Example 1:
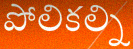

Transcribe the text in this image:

పోలికల్ని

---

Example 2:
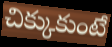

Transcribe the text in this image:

చిక్కుకుంటే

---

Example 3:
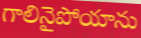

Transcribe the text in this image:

గాలినైపోయాను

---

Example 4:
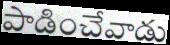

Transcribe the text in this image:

పాడించేవాడు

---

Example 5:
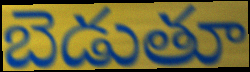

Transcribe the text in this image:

బెడుతూ